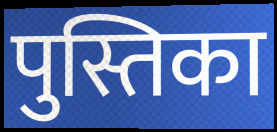
पुस्तिका